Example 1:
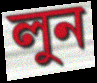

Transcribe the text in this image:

লুন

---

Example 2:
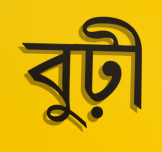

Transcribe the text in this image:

বুঢ়ী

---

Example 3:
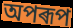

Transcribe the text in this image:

অপৰূপ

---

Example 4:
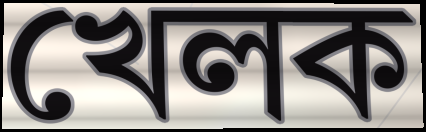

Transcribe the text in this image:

খেলক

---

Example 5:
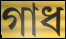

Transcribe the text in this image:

গাধ